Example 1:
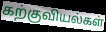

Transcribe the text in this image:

கற்குவியல்கள்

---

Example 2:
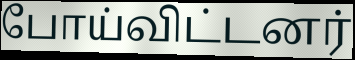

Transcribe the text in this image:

போய்விட்டனர்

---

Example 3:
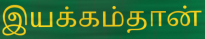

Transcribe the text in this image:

இயக்கம்தான்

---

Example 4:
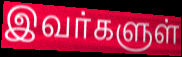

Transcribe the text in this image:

இவர்களுள்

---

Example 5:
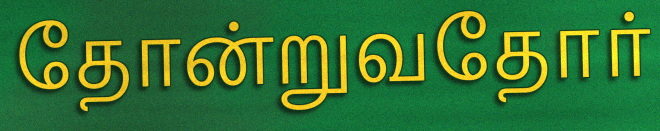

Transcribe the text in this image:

தோன்றுவதோர்